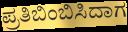
ಪ್ರತಿಬಿಂಬಿಸಿದಾಗ